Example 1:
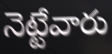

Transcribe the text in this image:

నెట్టేవారు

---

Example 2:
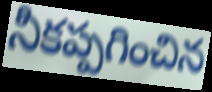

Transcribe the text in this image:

నీకప్పగించిన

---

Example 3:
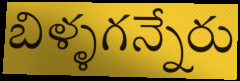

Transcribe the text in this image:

బిళ్ళగన్నేరు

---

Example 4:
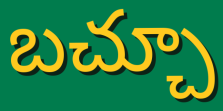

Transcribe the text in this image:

బచ్చూ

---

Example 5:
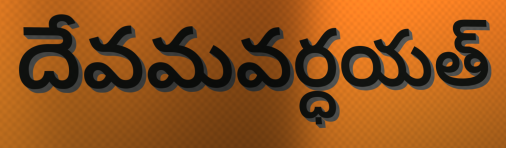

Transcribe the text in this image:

దేవమవర్ధయత్